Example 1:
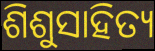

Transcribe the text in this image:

ଶିଶୁସାହିତ୍ୟ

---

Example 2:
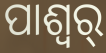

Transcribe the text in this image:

ପାଶ୍ୱର୍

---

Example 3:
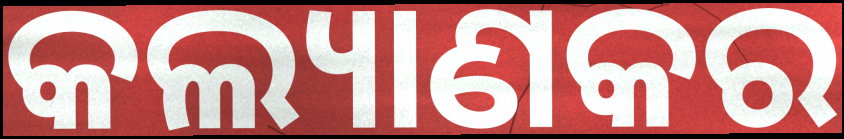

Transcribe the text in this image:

କଲ୍ୟାଣକର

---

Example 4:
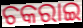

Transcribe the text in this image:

ଚକରାଇ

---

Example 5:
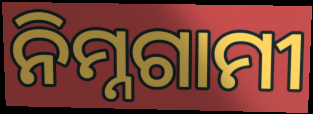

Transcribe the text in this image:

ନିମ୍ନଗାମୀ